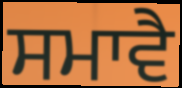
ਸਮਾਵੈ